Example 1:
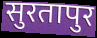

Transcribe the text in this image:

सुरतापुर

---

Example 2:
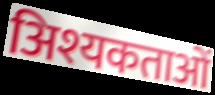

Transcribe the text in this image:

अिश्यकताओं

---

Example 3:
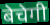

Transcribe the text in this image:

बेचेगी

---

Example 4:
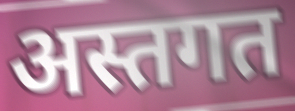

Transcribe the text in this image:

अस्तगत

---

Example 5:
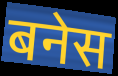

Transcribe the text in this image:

बनेस